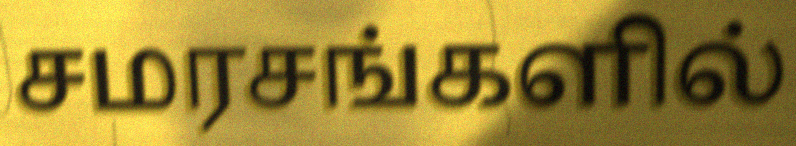
சமரசங்களில்